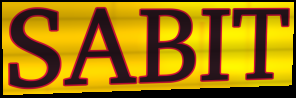
SABIT